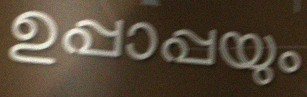
ഉപ്പാപ്പയും